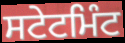
ਸਟੇਟਮਿੰਟ